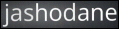
jashodane